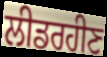
ਲੀਡਰਹੀਣ